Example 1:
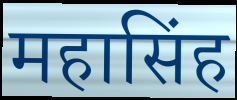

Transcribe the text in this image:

महासिंह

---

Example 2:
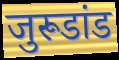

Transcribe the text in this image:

जुरूडांड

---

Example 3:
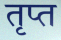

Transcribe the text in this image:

तृप्त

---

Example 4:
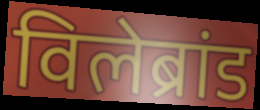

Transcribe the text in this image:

विलेब्रांड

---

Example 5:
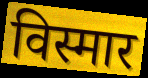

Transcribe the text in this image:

विस्मार